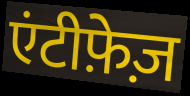
एंटीफ़ेज़